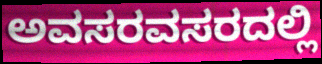
ಅವಸರವಸರದಲ್ಲಿ